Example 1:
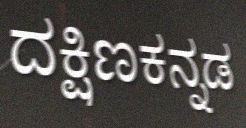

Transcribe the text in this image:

ದಕ್ಷಿಣಕನ್ನಡ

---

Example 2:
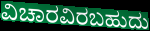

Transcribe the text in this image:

ವಿಚಾರವಿರಬಹುದು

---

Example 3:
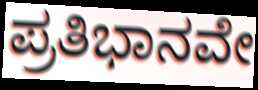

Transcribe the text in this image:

ಪ್ರತಿಭಾನವೇ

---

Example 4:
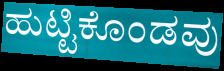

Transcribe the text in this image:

ಹುಟ್ಟಿಕೊಂಡವು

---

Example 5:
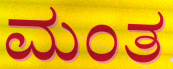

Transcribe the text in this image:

ಮಂತ